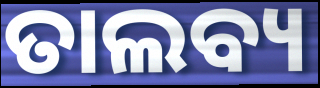
ତାଲବ୍ୟ